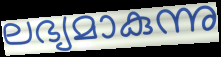
ലഭ്യമാകുന്നു